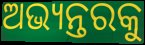
ଅଭ୍ୟନ୍ତରକୁ